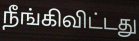
நீங்கிவிட்டது